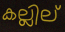
കല്ലില്